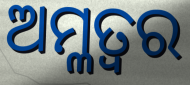
ଅମ୍ଳତ୍ଵର